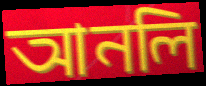
আনলি